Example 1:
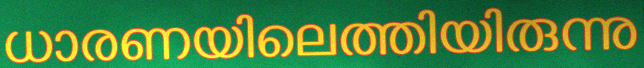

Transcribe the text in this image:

ധാരണയിലെത്തിയിരുന്നു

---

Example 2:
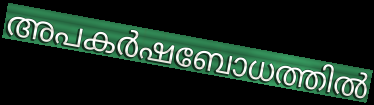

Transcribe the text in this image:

അപകർഷബോധത്തിൽ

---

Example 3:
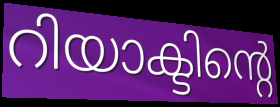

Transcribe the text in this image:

റിയാക്ടിന്റെ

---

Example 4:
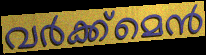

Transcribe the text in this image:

വർക്ക്മെൻ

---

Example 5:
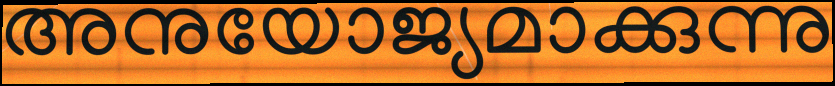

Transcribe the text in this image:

അനുയോജ്യമാക്കുന്നു